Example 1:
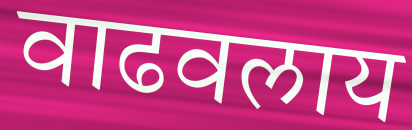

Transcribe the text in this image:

वाढवलाय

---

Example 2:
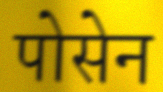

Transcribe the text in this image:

पोसेन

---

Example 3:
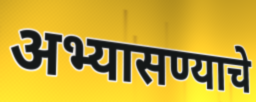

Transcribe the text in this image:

अभ्यासण्याचे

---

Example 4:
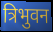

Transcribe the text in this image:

त्रिभुवन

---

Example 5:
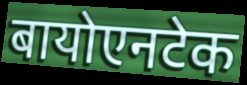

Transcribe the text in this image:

बायोएनटेक